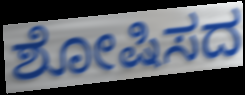
ಶೋಷಿಸದ